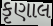
કૃણાલ